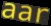
aar